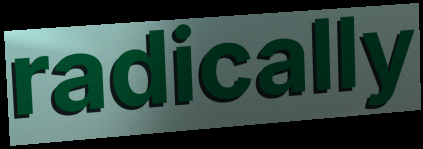
radically